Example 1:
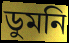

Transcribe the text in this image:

ডুমনি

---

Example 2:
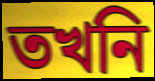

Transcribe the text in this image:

তখনি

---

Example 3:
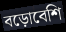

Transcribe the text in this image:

বড়োবেশি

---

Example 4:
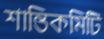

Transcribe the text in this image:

শান্তিকমিটি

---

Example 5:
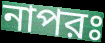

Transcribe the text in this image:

নাপরঃ